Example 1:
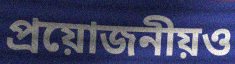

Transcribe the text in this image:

প্রয়োজনীয়ও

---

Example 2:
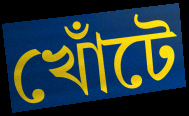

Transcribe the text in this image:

খোঁটে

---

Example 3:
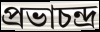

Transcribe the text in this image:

প্রভাচন্দ্র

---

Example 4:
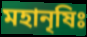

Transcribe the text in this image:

মহানৃষিঃ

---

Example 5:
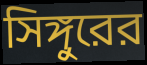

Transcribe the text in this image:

সিঙ্গুরের